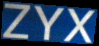
ZYX